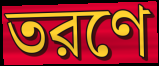
তরণে